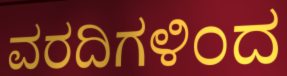
ವರದಿಗಳಿಂದ